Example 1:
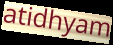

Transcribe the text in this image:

atidhyam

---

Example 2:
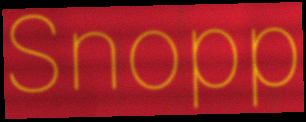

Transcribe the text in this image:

Snopp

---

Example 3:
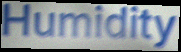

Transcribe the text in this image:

Humidity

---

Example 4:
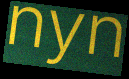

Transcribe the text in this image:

nyn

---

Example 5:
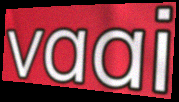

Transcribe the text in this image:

vaai